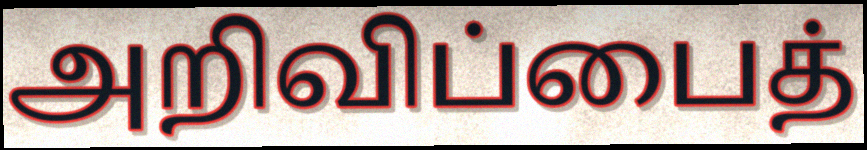
அறிவிப்பைத்